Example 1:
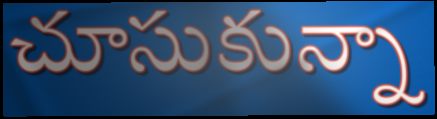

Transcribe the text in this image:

చూసుకున్నా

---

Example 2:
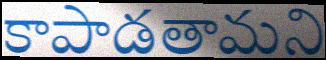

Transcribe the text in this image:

కాపాడతామని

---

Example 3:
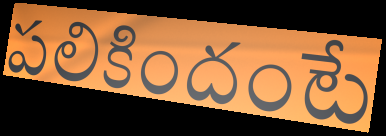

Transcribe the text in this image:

పలికిందంటే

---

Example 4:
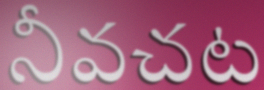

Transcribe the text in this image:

నీవచట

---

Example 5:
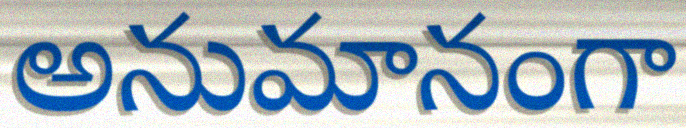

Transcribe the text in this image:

అనుమానంగా